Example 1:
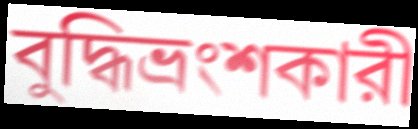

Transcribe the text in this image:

বুদ্ধিভ্রংশকারী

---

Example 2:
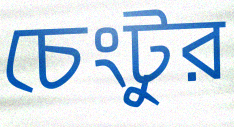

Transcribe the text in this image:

চেংটুর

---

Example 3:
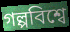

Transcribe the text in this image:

গল্পবিশ্বে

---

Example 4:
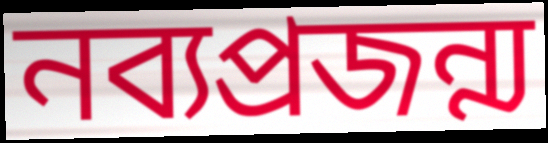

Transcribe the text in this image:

নব্যপ্রজন্ম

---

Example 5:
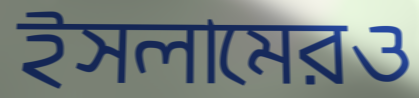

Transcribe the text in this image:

ইসলামেরও